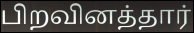
பிறவினத்தார்